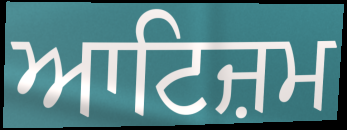
ਆਟਿਜ਼ਮ